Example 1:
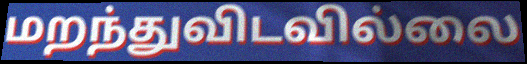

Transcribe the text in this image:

மறந்துவிடவில்லை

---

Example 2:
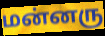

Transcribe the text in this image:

மன்னரு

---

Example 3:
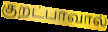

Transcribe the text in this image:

குறட்பாவால்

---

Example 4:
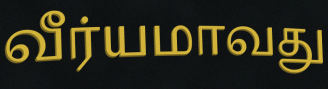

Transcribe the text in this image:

வீர்யமாவது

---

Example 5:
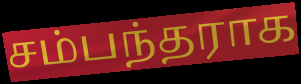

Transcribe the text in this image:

சம்பந்தராக